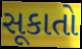
સૂકાતો